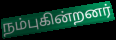
நம்புகின்றனர்